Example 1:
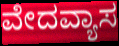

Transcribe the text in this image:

ವೇದವ್ಯಾಸ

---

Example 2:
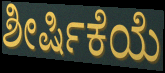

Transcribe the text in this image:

ಶೀರ್ಷಿಕೆಯೆ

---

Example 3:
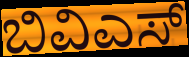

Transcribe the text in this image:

ಬಿವಿಎಸ್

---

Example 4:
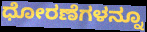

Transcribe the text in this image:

ಧೋರಣೆಗಳನ್ನೂ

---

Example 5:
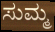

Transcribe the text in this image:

ಸುಮ್ಮ